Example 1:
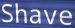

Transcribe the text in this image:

Shave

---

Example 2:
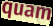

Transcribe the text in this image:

quam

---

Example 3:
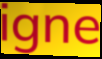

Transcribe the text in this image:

igne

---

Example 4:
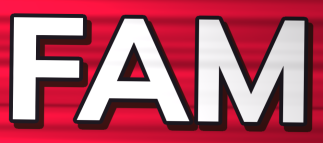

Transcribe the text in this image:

FAM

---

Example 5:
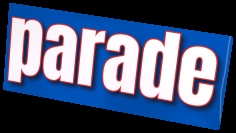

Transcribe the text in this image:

parade